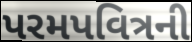
પરમપવિત્રની